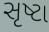
સૃષ્ટા